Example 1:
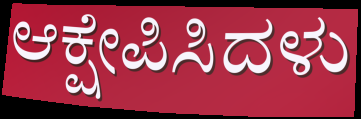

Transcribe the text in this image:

ಆಕ್ಷೇಪಿಸಿದಳು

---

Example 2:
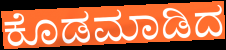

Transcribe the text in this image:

ಕೊಡಮಾಡಿದ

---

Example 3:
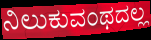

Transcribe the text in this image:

ನಿಲುಕುವಂಥದಲ್ಲ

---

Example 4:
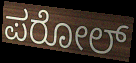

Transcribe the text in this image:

ಪರೋಲ್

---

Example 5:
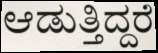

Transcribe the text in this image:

ಆಡುತ್ತಿದ್ದರೆ